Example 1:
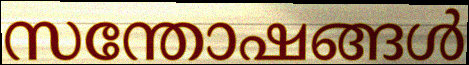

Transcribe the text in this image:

സന്തോഷങ്ങൾ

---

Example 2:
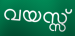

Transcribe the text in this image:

വയസ്സ്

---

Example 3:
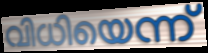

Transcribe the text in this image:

വിധിയെന്ന്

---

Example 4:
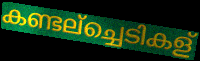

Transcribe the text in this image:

കണ്ടല്ച്ചെടികള്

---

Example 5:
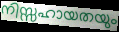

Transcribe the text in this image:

നിസ്സഹായതയും